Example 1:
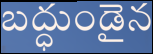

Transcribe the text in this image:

బద్ధుండైన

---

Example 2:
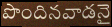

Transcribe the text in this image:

పొందినవాడనై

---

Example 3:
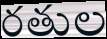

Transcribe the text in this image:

రతుల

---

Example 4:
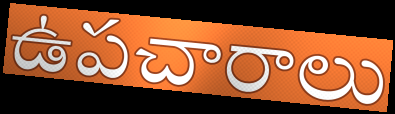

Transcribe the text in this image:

ఉపచారాలు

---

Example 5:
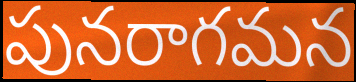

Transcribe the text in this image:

పునరాగమన